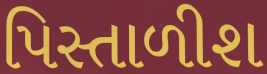
પિસ્તાળીશ